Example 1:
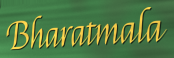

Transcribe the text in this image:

Bharatmala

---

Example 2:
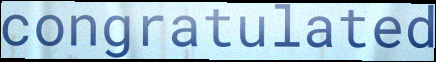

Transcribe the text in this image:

congratulated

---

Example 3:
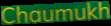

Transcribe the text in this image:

Chaumukh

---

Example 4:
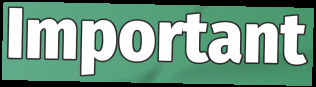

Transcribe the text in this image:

Important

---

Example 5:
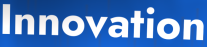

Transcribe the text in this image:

Innovation